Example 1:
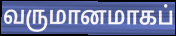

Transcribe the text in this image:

வருமானமாகப்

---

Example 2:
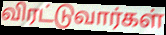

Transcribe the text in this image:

விரட்டுவார்கள்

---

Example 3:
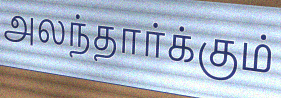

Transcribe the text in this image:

அலந்தார்க்கும்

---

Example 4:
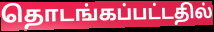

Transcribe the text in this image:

தொடங்கப்பட்டதில்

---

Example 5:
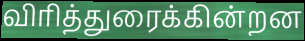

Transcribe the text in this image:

விரித்துரைக்கின்றன